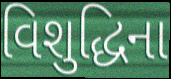
વિશુદ્ધિના